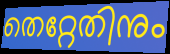
തെറ്റേതിനും